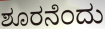
ಶೂರನೆಂದು